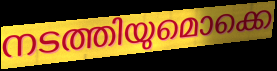
നടത്തിയുമൊക്കെ